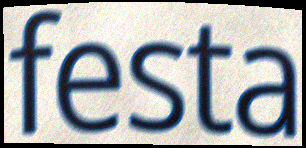
festa